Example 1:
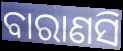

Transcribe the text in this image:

ବାରାଣସି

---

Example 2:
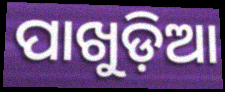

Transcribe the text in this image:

ପାଖୁଡ଼ିଆ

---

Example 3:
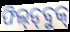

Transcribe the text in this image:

ଫିଲ୍‍ଡ୍‍ବୁକ୍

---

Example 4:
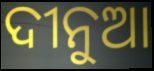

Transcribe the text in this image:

ଦୀନୁଆ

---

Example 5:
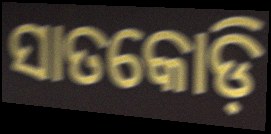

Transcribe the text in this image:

ସାତକୋଡ଼ି